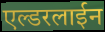
एल्डरलाईन